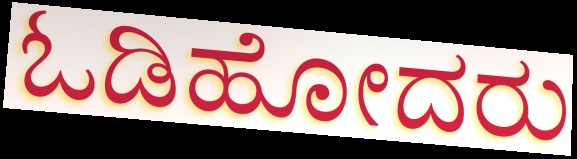
ಓಡಿಹೋದರು